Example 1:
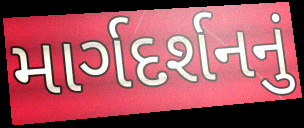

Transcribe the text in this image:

માર્ગદર્શનનું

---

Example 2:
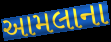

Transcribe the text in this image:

આમલાના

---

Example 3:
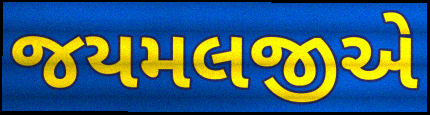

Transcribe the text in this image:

જયમલજીએ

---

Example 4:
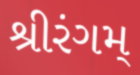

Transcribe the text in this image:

શ્રીરંગમ્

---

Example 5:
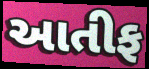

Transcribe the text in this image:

આતીફ